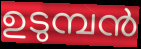
ഉടുമ്പൻ